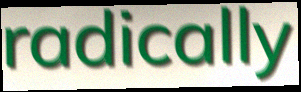
radically